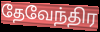
தேவேந்திர